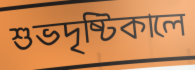
শুভদৃষ্টিকালে